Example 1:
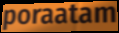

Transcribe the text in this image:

poraatam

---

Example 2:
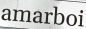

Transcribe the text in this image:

amarboi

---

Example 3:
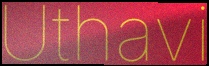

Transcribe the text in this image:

Uthavi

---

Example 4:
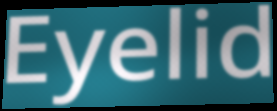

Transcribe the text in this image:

Eyelid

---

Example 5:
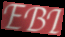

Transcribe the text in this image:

EBI